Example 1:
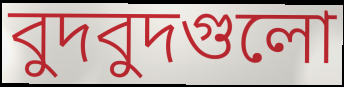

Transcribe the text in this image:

বুদবুদগুলো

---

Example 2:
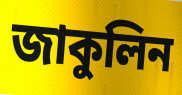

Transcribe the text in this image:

জাকুলিন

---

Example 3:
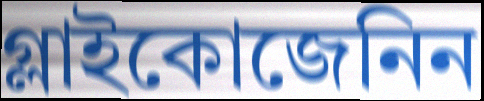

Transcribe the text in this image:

গ্লাইকোজেনিন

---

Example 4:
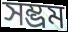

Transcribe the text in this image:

সম্ভ্রম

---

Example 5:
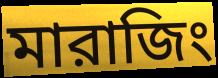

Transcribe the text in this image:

মারাজিং